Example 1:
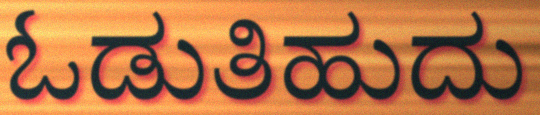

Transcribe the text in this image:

ಓಡುತಿಹುದು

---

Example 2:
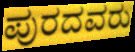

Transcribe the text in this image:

ಪುರದವರು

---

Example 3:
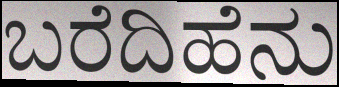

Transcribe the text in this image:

ಬರೆದಿಹೆನು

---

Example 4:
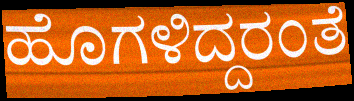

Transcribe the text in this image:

ಹೊಗಳಿದ್ದರಂತೆ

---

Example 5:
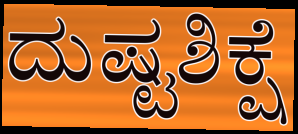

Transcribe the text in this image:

ದುಷ್ಟಶಿಕ್ಷೆ